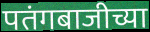
पतंगबाजीच्या